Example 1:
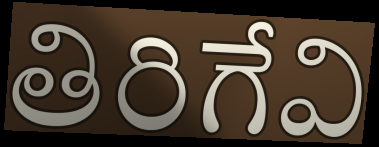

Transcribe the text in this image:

తిరిగేవి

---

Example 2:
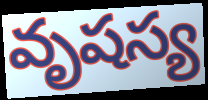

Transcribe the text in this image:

వృషస్య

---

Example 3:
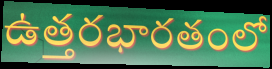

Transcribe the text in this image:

ఉత్తరభారతంలో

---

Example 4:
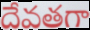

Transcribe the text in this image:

దేవతగా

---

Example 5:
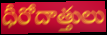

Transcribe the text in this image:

ధీరోదాత్తులు